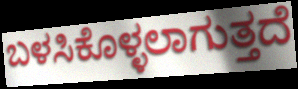
ಬಳಸಿಕೊಳ್ಳಲಾಗುತ್ತದೆ